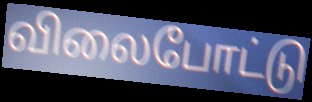
விலைபோட்டு